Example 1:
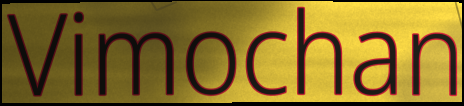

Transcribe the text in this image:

Vimochan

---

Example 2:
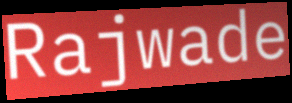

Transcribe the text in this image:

Rajwade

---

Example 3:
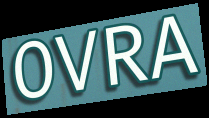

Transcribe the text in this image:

OVRA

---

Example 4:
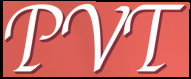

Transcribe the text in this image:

PVT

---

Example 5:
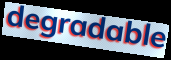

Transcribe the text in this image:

degradable